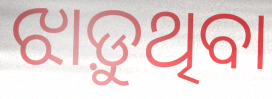
ଝାଡ଼ୁଥିବା